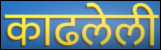
काढलेली